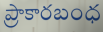
ప్రాకారబంధ